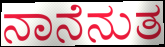
ನಾನೆನುತ